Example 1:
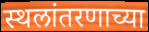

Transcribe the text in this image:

स्थलांतरणाच्या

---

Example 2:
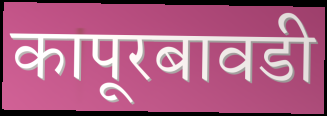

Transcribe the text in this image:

कापूरबावडी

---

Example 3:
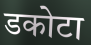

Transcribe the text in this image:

डकोटा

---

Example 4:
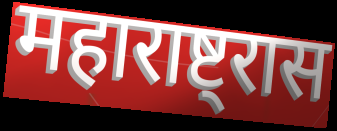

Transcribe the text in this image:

महाराष्ट्रास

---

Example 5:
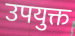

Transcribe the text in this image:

उपयुक्त